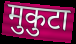
मुकुटा